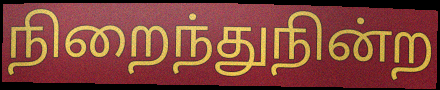
நிறைந்துநின்ற